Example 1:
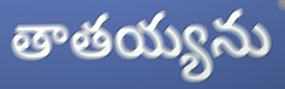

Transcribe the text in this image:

తాతయ్యను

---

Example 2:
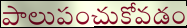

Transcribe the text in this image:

పాలుపంచుకోవడం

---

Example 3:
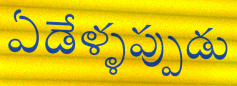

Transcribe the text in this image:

ఏడేళ్ళప్పుడు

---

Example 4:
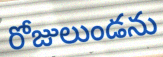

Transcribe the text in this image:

రోజులుండను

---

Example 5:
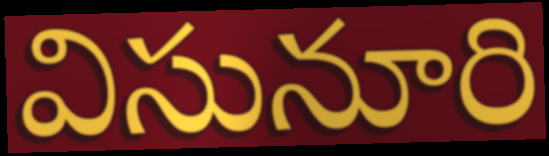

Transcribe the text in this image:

విసునూరి